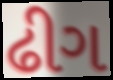
ઢીગ